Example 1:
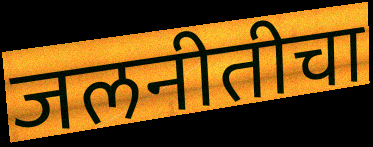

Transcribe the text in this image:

जलनीतीचा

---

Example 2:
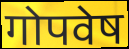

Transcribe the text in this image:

गोपवेष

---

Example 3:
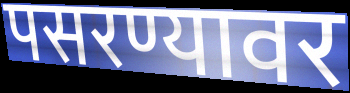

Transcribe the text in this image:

पसरण्यावर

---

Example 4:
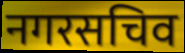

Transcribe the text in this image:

नगरसचिव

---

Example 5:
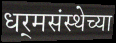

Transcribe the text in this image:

धर्मसंस्थेच्या